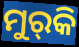
ମୁର୍‌କି